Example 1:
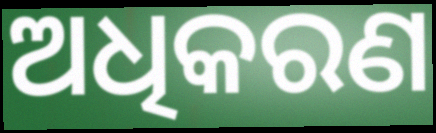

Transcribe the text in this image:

ଅଧିକରଣ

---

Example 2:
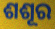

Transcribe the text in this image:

ଶଶୂର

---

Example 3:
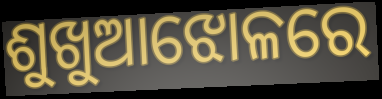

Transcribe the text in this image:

ଶୁଖୁଆଝୋଳରେ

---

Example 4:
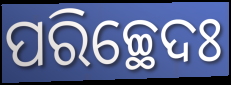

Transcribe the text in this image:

ପରିଚ୍ଛେଦଃ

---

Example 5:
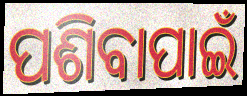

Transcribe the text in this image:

ପଶିବାପାଇଁ